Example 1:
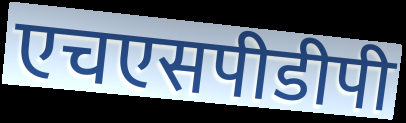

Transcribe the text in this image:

एचएसपीडीपी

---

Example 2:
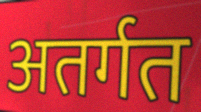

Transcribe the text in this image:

अतर्गत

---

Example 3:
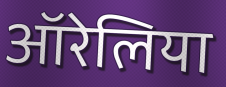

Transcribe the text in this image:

ऑरेलिया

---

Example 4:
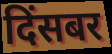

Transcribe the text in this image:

दिंसबर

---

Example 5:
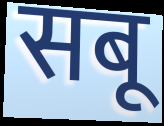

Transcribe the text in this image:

सबू